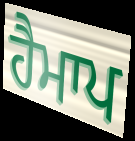
ਹੈਮਾਪ